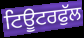
ਟਿਊਟਰਫੁੱਲ